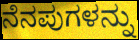
ನೆನಪುಗಳನ್ನು